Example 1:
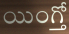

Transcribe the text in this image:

యింగ్తో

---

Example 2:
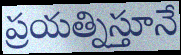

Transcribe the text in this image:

ప్రయత్నిస్తూనే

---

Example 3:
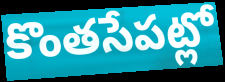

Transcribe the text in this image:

కొంతసేపట్లో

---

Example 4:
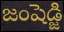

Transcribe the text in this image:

జంషెడ్జి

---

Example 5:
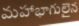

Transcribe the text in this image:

మహాభాగులైన